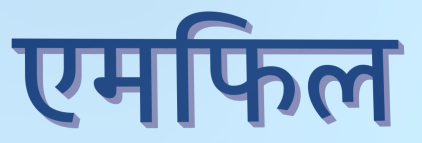
एमफिल